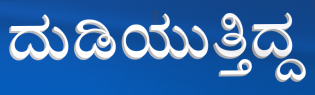
ದುಡಿಯುತ್ತಿದ್ದ